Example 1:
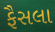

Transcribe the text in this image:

ફૈસલા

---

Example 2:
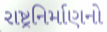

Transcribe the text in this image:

રાષ્ટ્રનિર્માણનો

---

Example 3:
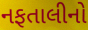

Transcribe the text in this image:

નફતાલીનો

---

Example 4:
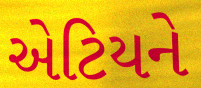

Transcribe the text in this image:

એટિયને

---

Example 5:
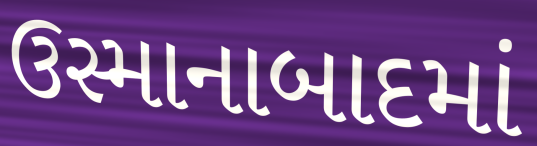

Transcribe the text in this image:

ઉસ્માનાબાદમાં